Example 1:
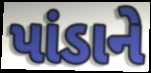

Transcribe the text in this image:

પાંડાને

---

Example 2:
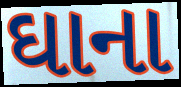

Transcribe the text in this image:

ઘાના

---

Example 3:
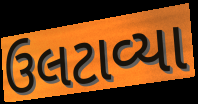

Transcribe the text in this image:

ઉલટાવ્યા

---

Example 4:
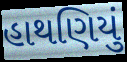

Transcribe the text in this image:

હાથણિયું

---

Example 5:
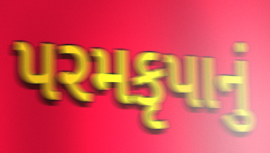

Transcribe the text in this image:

પરમકૃપાનું